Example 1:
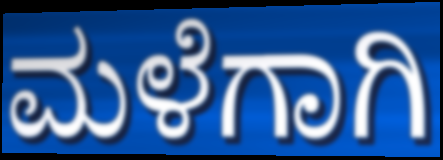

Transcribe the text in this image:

ಮಳೆಗಾಗಿ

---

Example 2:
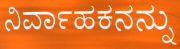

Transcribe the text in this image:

ನಿರ್ವಾಹಕನನ್ನು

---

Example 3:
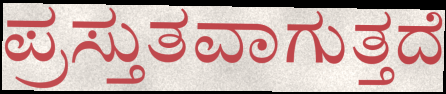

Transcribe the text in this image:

ಪ್ರಸ್ತುತವಾಗುತ್ತದೆ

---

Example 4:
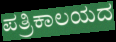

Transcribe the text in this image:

ಪತ್ರಿಕಾಲಯದ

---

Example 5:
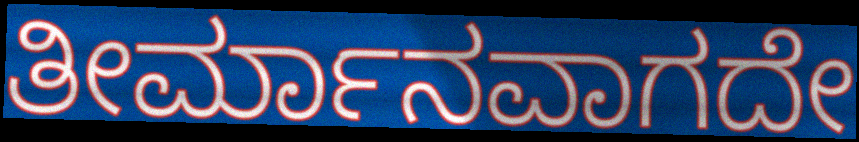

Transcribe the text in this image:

ತೀರ್ಮಾನವಾಗದೇ